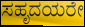
ಸಹೃದಯರೇ